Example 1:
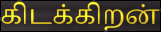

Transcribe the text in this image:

கிடக்கிறன்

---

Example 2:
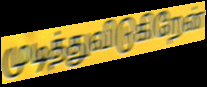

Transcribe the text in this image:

முடித்துவிடுகிறேன்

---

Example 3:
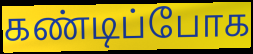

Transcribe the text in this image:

கண்டிப்போக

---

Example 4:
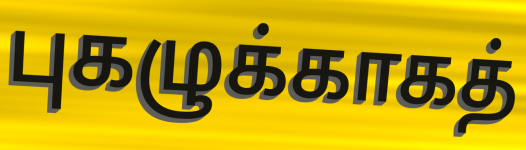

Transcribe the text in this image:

புகழுக்காகத்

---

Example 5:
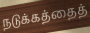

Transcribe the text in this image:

நடுக்கத்தைத்